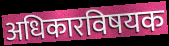
अधिकारविषयक